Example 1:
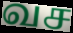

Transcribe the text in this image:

வச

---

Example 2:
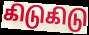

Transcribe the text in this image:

கிடுகிடு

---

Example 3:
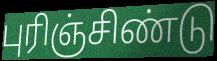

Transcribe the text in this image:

புரிஞ்சிண்டு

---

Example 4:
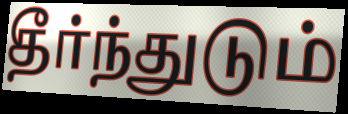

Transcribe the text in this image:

தீர்ந்துடும்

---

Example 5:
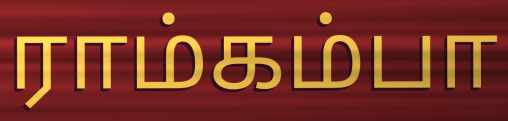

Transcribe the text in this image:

ராம்கம்பா